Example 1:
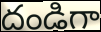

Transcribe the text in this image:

దండిగా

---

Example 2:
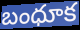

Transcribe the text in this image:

బంధూక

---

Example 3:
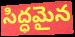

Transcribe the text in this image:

సిద్ధమైన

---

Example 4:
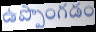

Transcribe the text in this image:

ఉప్పొంగడం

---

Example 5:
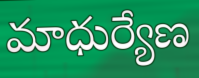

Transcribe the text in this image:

మాధుర్యేణ